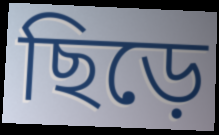
ছিড়ে